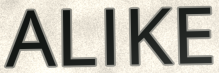
ALIKE